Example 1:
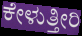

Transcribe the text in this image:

ಕೇಳುತ್ತೀರಿ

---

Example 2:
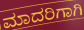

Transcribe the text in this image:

ಮಾದರಿಗಾಗಿ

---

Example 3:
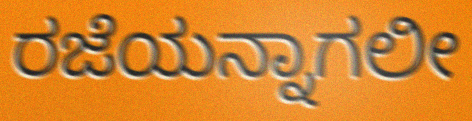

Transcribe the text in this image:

ರಜೆಯನ್ನಾಗಲೀ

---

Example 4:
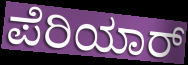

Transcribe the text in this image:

ಪೆರಿಯಾರ್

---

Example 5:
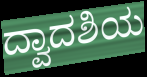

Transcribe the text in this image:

ದ್ವಾದಶಿಯ